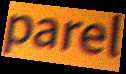
parel